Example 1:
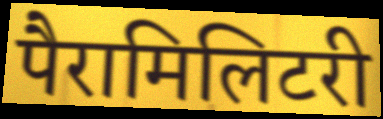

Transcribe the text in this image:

पैरामिलिटरी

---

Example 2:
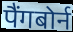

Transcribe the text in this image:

पैंगबोर्न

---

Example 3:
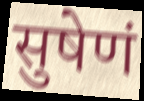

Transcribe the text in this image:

सुषेणं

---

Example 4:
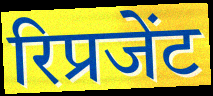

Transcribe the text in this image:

रिप्रजेंट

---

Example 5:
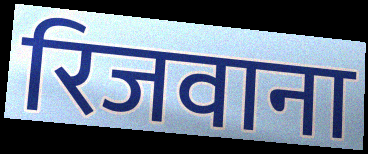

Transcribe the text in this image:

रिजवाना